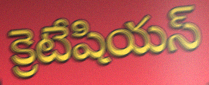
క్రెటేషియస్